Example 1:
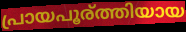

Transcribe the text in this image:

പ്രായപൂര്ത്തിയായ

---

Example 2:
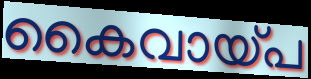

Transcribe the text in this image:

കൈവായ്പ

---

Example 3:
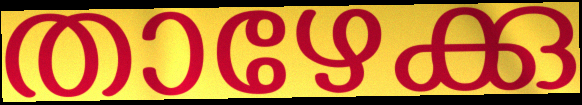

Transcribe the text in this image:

താഴേക്കു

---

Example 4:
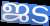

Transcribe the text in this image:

ജട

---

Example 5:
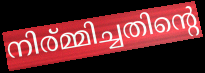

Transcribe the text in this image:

നിര്മ്മിച്ചതിന്റെ